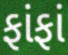
ફાંફાં